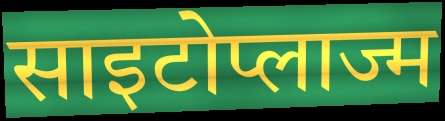
साइटोप्लाज्म